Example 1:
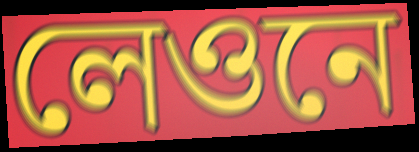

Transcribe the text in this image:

লেওনে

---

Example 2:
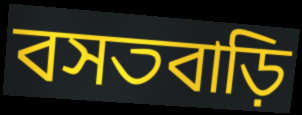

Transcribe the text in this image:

বসতবাড়ি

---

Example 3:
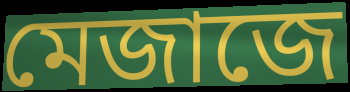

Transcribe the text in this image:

মেজাজে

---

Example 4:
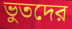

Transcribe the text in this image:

ভুতদের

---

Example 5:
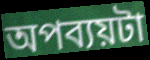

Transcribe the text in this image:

অপব্যয়টা